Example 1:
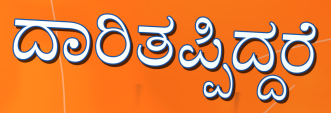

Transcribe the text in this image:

ದಾರಿತಪ್ಪಿದ್ದರೆ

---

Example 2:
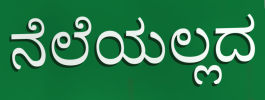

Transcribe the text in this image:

ನೆಲೆಯಲ್ಲದ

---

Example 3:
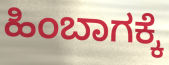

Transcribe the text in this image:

ಹಿಂಬಾಗಕ್ಕೆ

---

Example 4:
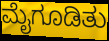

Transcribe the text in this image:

ಮೈಗೂಡಿತು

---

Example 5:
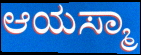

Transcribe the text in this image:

ಆಯಸ್ಮಾ